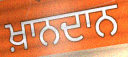
ਖ਼ਾਨਦਾਨ